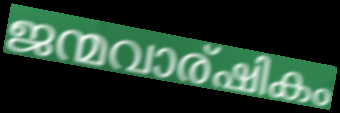
ജന്മവാര്ഷികം